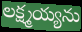
లక్ష్మయ్యను